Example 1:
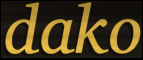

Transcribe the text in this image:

dako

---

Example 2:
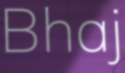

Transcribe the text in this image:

Bhaj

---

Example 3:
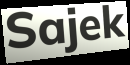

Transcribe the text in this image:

Sajek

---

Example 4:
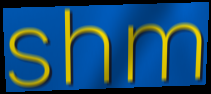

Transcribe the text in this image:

shm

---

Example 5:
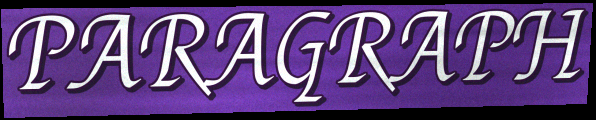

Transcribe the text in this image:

PARAGRAPH